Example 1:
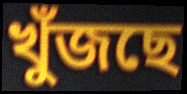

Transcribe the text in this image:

খুঁজছে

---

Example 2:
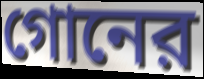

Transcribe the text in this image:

গোনের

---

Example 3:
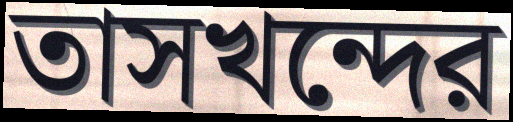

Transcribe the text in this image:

তাসখন্দের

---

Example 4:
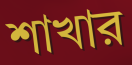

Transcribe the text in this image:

শাখার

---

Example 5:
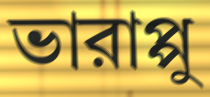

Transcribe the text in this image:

ভারাপ্পু